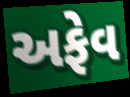
અફેવ